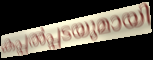
കപ്പൽപ്പടയുമായി